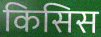
किसिस